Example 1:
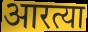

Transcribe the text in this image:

आरत्या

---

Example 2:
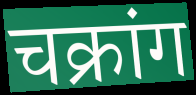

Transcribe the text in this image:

चक्रांग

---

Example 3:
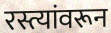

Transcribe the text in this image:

रस्त्यांवरून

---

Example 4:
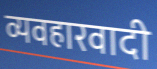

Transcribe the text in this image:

व्यवहारवादी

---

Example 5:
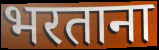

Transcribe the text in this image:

भरताना